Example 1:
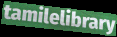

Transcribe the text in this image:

tamilelibrary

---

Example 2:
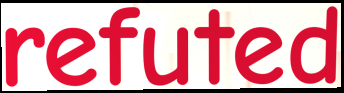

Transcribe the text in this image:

refuted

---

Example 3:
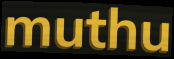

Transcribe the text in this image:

muthu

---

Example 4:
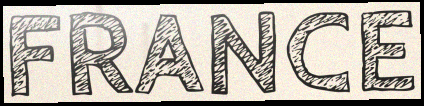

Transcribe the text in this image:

FRANCE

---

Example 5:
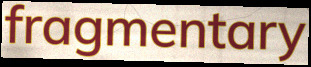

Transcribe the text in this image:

fragmentary